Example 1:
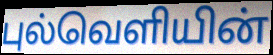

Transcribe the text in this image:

புல்வெளியின்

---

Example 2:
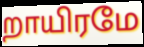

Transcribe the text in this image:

றாயிரமே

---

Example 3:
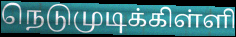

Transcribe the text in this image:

நெடுமுடிக்கிள்ளி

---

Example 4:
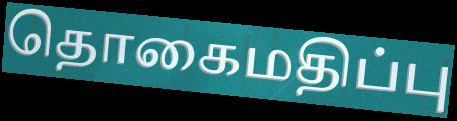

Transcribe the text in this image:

தொகைமதிப்பு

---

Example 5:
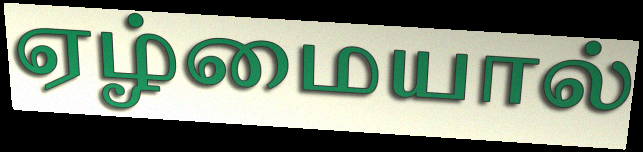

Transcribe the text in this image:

ஏழ்மையால்